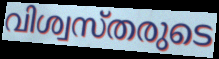
വിശ്വസ്തരുടെ